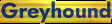
Greyhound